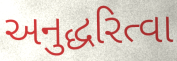
અનુદ્ધરિત્વા